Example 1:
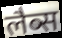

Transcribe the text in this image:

लैब्स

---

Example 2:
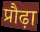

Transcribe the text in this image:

प्रौढ़ा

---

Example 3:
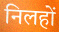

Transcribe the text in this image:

निलहों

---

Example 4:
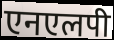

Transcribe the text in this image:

एनएलपी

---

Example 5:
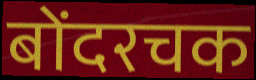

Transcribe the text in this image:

बोंदरचक